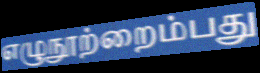
எழுநூற்றைம்பது